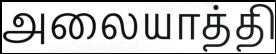
அலையாத்தி